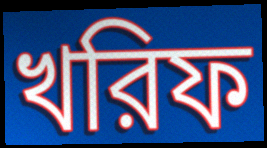
খরিফ